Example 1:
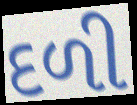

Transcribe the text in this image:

દળી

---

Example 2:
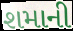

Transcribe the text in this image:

શમાની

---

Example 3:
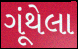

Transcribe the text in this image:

ગૂંથેલા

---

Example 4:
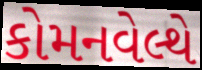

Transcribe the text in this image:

કોમનવેલ્થે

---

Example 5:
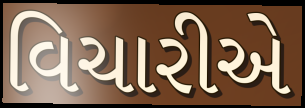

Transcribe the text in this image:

વિચારીએ